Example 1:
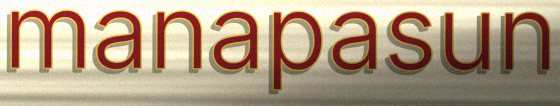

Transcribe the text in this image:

manapasun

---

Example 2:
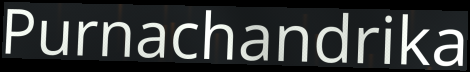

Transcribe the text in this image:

Purnachandrika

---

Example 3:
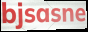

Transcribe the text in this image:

bjsasne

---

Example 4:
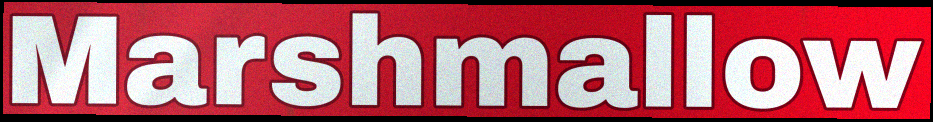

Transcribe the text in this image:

Marshmallow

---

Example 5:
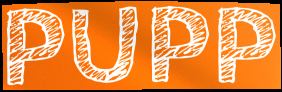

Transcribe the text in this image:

PUPP